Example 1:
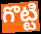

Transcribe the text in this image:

గొట్టి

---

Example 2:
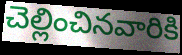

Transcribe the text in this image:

చెల్లించినవారికి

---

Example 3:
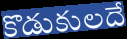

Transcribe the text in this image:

కొడుకులదే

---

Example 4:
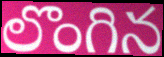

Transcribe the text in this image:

లొంగిన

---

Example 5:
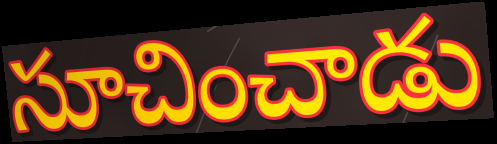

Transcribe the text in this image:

సూచించాడు